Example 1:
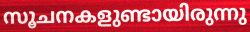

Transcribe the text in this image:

സൂചനകളുണ്ടായിരുന്നു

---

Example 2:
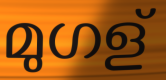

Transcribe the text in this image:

മുഗള്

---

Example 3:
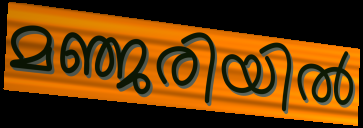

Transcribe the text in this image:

മഞ്ജരിയിൽ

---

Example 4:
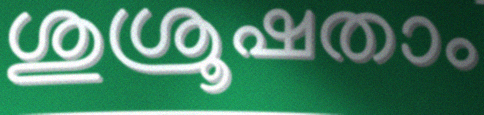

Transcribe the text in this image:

ശുശ്രൂഷതാം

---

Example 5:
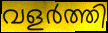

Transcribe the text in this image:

വളർത്തി